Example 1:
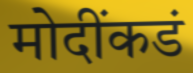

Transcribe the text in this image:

मोदींकडं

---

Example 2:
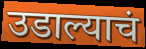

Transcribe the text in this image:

उडाल्याचं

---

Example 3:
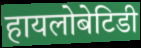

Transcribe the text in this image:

हायलोबेटिडी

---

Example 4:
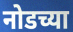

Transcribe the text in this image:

नोडच्या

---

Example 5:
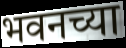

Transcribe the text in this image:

भवनच्या